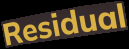
Residual